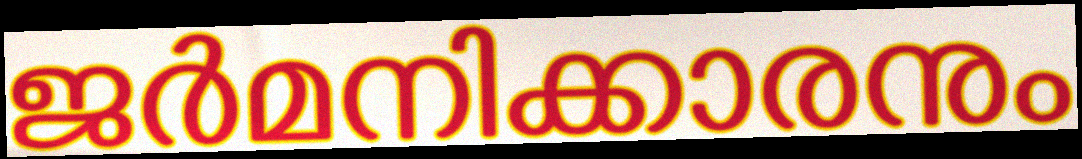
ജർമനിക്കാരനും